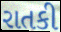
રાતકી